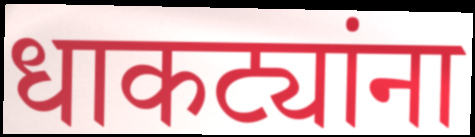
धाकट्यांना